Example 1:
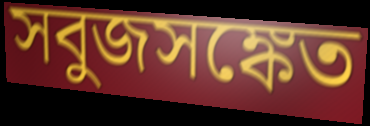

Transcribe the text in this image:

সবুজসঙ্কেত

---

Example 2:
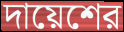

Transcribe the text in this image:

দায়েশের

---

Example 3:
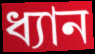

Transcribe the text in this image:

ধ্যান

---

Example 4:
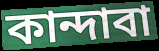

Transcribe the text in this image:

কান্দাবা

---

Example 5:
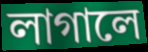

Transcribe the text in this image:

লাগালে